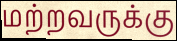
மற்றவருக்கு